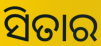
ସିତାର